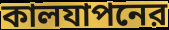
কালযাপনের